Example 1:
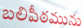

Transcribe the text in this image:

బలిపీఠమును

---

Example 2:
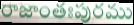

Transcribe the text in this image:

రాజాంతఃపురము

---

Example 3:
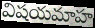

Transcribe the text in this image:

విషయమాహ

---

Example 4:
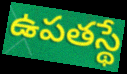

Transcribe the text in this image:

ఉపతస్థే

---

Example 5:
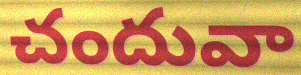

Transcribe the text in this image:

చందువా